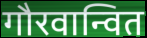
गौरवान्वित